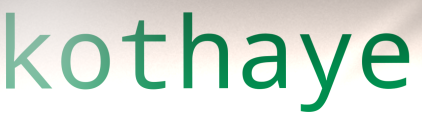
kothaye